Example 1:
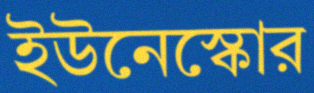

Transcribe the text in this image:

ইউনেস্কোর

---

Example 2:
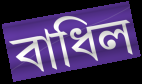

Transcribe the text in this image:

বাধিল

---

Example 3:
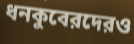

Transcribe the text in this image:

ধনকুবেরদেরও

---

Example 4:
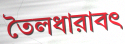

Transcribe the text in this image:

তৈলধারাবৎ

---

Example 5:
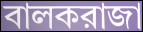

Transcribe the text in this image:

বালকরাজা